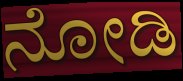
ನೋಡಿ